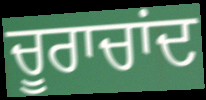
ਚੂਰਾਚਾਂਦ